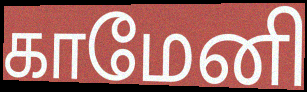
காமேனி